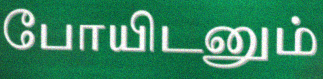
போயிடனும்